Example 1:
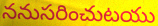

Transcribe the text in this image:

ననుసరించుటయు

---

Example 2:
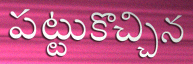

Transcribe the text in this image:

పట్టుకొచ్చిన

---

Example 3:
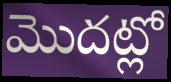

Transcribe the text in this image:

మొదట్లో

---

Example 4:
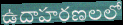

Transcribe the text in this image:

ఉదాహరణలలో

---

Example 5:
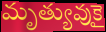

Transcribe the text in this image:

మృత్యువుకై